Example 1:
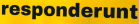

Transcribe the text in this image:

responderunt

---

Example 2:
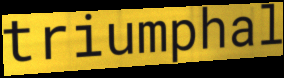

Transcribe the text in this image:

triumphal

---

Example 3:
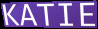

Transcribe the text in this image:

KATIE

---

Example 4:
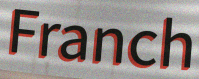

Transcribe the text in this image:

Franch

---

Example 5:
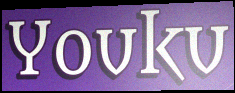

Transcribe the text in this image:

Youku